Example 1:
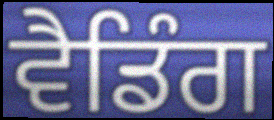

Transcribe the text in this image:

ਵੈਡਿੰਗ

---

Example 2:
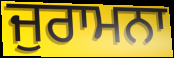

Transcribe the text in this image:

ਜੁਰਾਮਨਾ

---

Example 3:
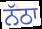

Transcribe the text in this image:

ਨੱਠਾ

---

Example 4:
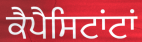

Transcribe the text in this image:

ਕੈਪੈਸਿਟਾਂਟਾਂ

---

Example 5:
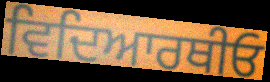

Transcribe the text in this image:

ਵਿਦਿਆਰਥੀਓ